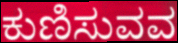
ಕುಣಿಸುವವ